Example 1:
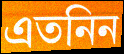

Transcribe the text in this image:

এতনিন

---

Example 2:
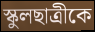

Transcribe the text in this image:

স্কুলছাত্রীকে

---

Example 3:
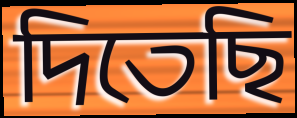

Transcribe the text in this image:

দিতেছি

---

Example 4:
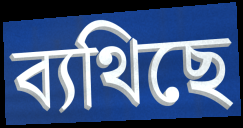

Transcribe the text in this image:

ব্যথিছে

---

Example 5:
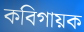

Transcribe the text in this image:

কবিগায়ক